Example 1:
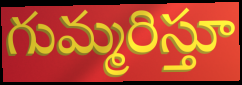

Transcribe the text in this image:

గుమ్మరిస్తూ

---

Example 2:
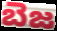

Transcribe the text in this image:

బెజ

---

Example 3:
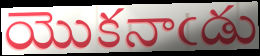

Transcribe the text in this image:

యొకనాఁడు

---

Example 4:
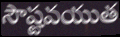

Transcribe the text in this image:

సౌష్టవయుత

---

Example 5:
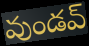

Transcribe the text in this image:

వుండవ్